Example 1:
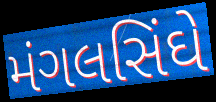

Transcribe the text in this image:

મંગલસિંઘે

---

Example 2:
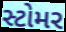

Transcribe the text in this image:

સ્ટોમર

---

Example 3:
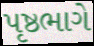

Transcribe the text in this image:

પૃષ્ઠભાગે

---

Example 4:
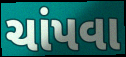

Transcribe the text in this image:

ચાંપવા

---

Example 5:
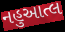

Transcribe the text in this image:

નહુઆત્લ